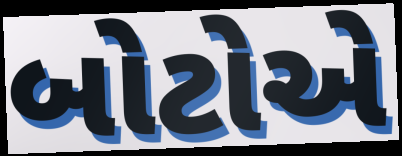
બોટોએ